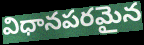
విధానపరమైన